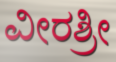
ವೀರಶ್ರೀ